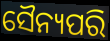
ସୈନ୍ୟପରି